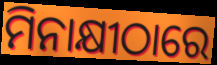
ମିନାକ୍ଷୀଠାରେ